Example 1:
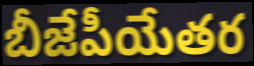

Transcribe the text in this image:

బీజేపీయేతర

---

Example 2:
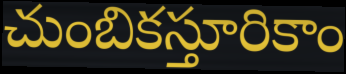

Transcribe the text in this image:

చుంబికస్తూరికాం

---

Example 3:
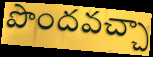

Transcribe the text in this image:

పొందవచ్చా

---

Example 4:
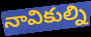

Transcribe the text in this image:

నావికుల్ని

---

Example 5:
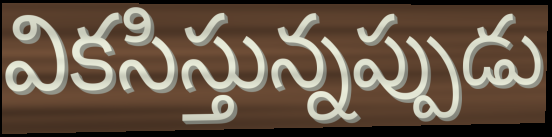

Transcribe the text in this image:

వికసిస్తున్నప్పుడు